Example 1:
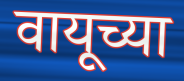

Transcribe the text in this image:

वायूच्या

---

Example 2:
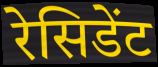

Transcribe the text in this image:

रेसिडेंट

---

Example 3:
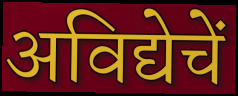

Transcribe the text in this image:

अविद्येचें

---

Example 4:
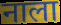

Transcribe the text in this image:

नाला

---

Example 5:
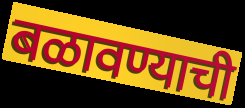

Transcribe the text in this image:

बळावण्याची